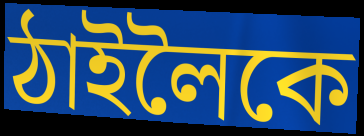
ঠাইলৈকে